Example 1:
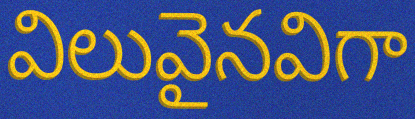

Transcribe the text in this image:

విలువైనవిగా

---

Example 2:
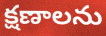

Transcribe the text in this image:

క్షణాలను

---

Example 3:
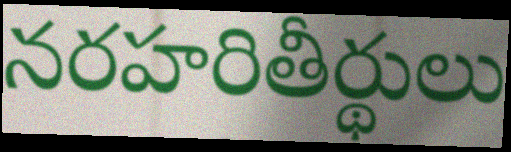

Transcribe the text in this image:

నరహరితీర్థులు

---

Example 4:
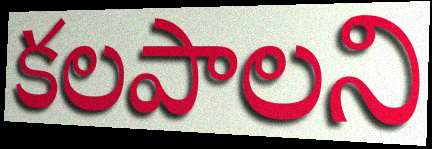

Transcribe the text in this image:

కలపాలని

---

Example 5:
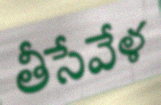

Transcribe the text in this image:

తీసేవేళ